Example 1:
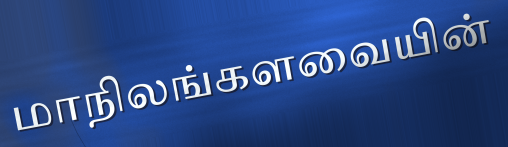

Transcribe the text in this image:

மாநிலங்களவையின்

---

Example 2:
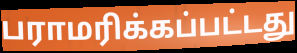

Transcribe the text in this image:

பராமரிக்கப்பட்டது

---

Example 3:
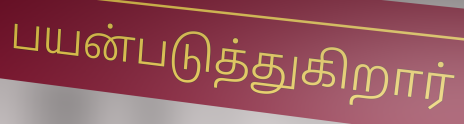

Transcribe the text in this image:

பயன்படுத்துகிறார்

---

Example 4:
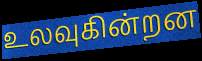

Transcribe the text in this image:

உலவுகின்றன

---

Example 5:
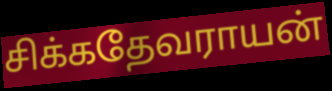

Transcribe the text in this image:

சிக்கதேவராயன்